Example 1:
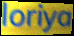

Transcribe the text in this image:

loriya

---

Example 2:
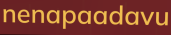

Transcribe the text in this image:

nenapaadavu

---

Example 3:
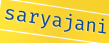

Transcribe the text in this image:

saryajani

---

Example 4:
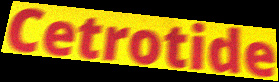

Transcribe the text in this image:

Cetrotide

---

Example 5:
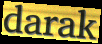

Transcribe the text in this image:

darak